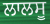
ਲਾਲਸੂ